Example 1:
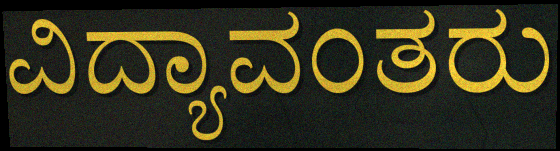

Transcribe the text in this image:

ವಿದ್ಯಾವಂತರು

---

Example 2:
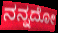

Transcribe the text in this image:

ನನ್ನದೋ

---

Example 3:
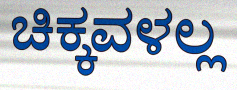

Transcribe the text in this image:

ಚಿಕ್ಕವಳಲ್ಲ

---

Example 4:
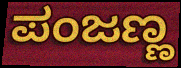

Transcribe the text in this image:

ಪಂಜಣ್ಣ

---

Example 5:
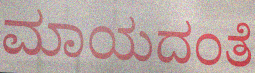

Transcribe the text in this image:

ಮಾಯದಂತೆ